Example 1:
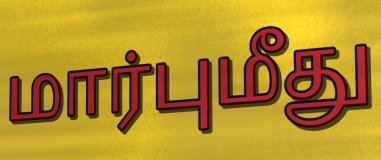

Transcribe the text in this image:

மார்புமீது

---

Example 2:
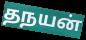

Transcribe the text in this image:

தநயன்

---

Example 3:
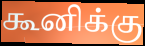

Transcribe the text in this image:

கூனிக்கு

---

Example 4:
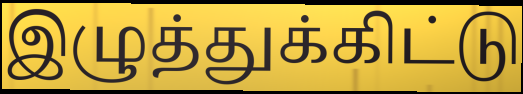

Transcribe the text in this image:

இழுத்துக்கிட்டு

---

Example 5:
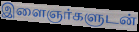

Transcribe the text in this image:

இளைஞர்களுடன்